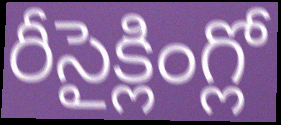
రీసైక్లింగ్లో